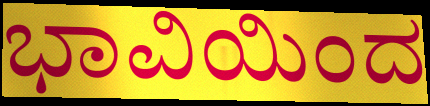
ಭಾವಿಯಿಂದ